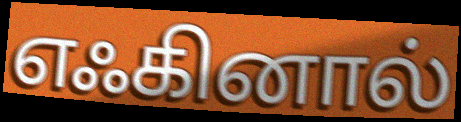
எஃகினால்